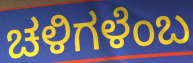
ಚಳಿಗಳೆಂಬ